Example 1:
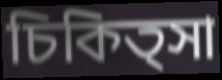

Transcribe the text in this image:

চিকিত্সা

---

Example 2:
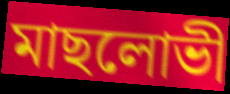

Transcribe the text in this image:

মাছলোভী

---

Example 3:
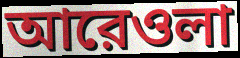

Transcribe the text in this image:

আরেওলা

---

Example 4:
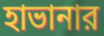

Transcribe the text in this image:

হাভানার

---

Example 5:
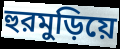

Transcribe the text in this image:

হুরমুড়িয়ে